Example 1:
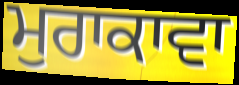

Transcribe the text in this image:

ਮੁਰਾਕਾਵਾ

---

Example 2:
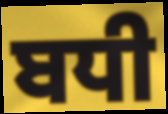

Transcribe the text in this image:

ਬਧੀ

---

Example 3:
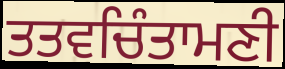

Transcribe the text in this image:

ਤਤਵਚਿੰਤਾਮਣੀ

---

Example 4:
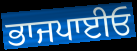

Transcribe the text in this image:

ਭਾਜਪਾਈਓ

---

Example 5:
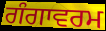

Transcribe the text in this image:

ਗੰਗਾਵਰਮ